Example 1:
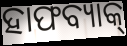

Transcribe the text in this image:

ହାଫବ୍ୟାକ୍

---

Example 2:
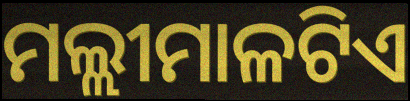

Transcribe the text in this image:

ମଲ୍ଲୀମାଳଟିଏ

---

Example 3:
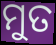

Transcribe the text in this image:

ମୁତ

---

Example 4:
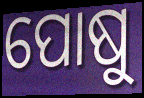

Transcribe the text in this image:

ପୋଷୁ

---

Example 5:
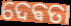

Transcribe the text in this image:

ଦେଵତା